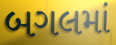
બગલમાં